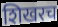
शिखरच